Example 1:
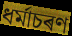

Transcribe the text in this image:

ধৰ্মাচৰণ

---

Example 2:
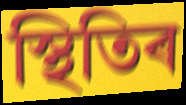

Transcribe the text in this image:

স্থিতিৰ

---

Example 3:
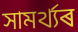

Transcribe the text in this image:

সামৰ্থ্যৰ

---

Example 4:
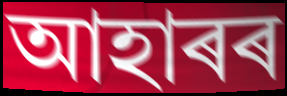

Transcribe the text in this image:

আহাৰৰ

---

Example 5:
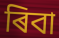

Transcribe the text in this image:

ৰিবা